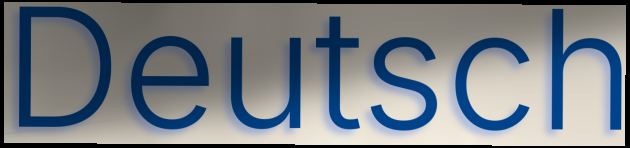
Deutsch